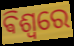
ଵିଶ୍ୱରେ